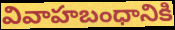
వివాహబంధానికి